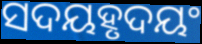
ସଦୟହୃଦୟଂ